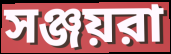
সঞ্জয়রা